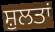
ਸ਼ੁਲਤਾਂ